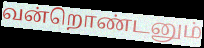
வன்றொண்டனும்